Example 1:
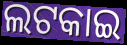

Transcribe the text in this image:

ଲଟକାଇ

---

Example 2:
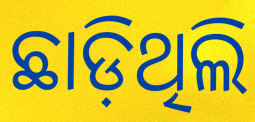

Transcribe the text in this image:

ଛାଡ଼ିଥିଲି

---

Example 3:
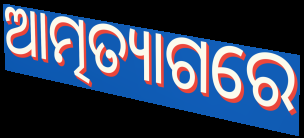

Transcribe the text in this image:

ଆତ୍ମତ୍ୟାଗରେ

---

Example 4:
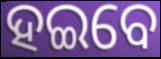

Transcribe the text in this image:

ହଇବେ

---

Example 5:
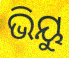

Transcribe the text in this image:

ଭିୟୁ